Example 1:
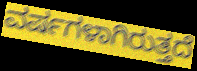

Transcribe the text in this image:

ವರ್ಷಗಳಾಗಿರುತ್ತದೆ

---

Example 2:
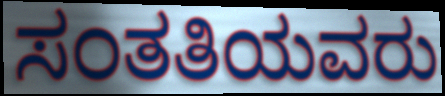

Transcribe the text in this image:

ಸಂತತಿಯವರು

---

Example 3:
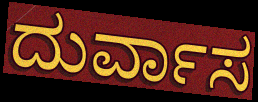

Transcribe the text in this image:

ದುರ್ವಾಸ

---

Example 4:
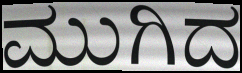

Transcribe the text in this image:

ಮುಗಿದ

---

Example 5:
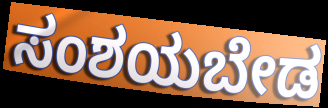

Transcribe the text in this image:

ಸಂಶಯಬೇಡ